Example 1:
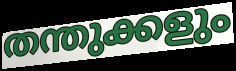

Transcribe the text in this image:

തന്തുക്കളും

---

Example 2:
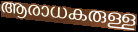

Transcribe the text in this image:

ആരാധകരുള്ള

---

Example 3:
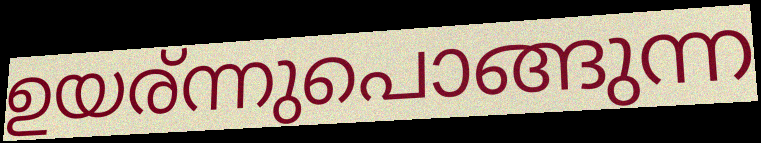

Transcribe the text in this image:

ഉയര്ന്നുപൊങ്ങുന്ന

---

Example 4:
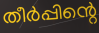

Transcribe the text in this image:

തീർപ്പിന്റെ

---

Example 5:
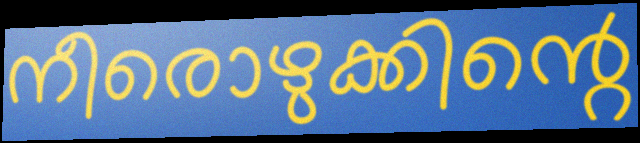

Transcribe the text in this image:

നീരൊഴുക്കിന്റെ